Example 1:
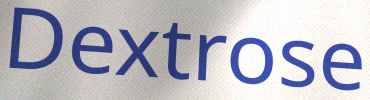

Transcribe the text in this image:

Dextrose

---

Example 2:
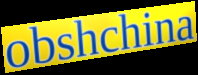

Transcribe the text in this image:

obshchina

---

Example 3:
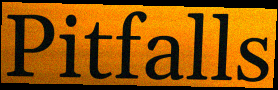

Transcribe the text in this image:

Pitfalls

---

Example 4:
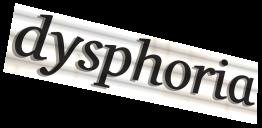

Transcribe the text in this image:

dysphoria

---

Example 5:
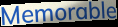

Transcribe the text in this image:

Memorable